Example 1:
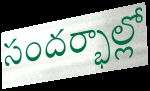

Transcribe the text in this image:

సందర్భాల్లో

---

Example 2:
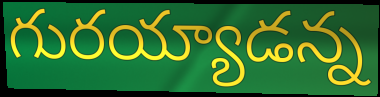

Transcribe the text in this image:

గురయ్యాడన్న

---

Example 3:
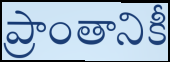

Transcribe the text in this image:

ప్రాంతానికీ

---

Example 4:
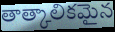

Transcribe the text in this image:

తాత్కాలికమైన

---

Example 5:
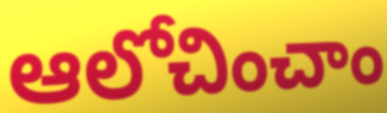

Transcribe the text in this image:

ఆలోచించాం